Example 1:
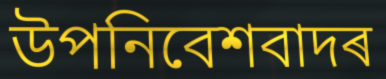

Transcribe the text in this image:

উপনিবেশবাদৰ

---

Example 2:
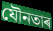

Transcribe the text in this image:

যৌনতাৰ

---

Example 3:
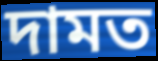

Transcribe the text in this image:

দামত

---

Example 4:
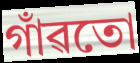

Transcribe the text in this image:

গাঁৱতো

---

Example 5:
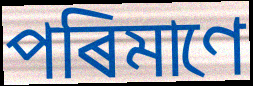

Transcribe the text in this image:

পৰিমাণে